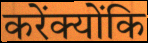
करेंक्योंकि